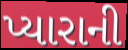
પ્યારાની